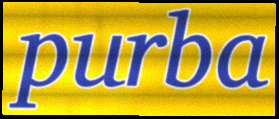
purba